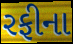
રફીના